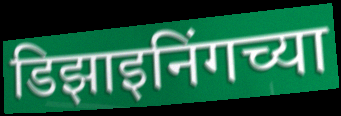
डिझाइनिंगच्या